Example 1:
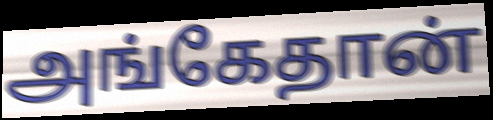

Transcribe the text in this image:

அங்கேதான்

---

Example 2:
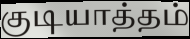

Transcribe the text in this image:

குடியாத்தம்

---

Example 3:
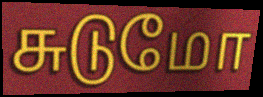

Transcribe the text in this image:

சுடுமோ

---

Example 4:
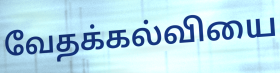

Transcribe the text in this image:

வேதக்கல்வியை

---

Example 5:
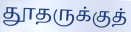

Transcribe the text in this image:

தூதருக்குத்